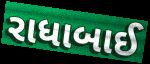
રાધાબાઈ